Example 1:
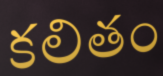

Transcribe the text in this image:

కలితం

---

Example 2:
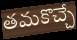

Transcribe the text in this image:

తమకొచ్చే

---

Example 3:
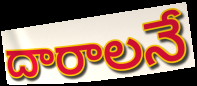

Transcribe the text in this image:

దారాలనే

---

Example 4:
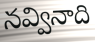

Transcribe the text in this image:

నవ్వినాది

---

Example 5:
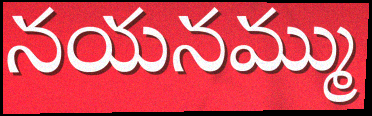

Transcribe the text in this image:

నయనమ్ము